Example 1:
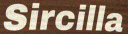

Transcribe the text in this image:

Sircilla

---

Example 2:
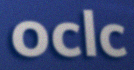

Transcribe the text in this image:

oclc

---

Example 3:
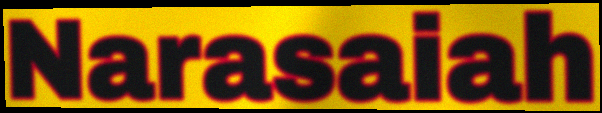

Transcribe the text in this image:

Narasaiah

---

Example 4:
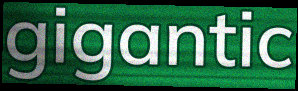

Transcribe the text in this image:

gigantic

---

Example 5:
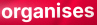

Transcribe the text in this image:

organises